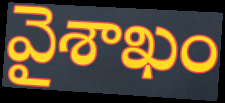
వైశాఖం